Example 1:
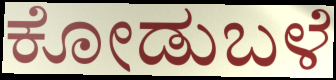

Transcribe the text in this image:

ಕೋಡುಬಳೆ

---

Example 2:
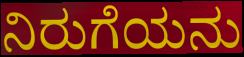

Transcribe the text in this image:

ನಿರುಗೆಯನು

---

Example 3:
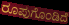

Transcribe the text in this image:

ರೂಪುಗೊಂಡಿದೆ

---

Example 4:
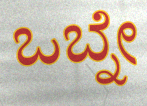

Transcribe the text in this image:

ಒಬ್ನೇ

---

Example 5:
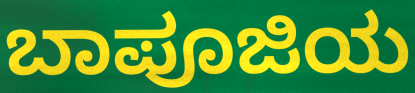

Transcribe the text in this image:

ಬಾಪೂಜಿಯ